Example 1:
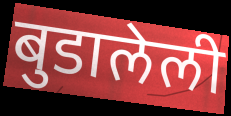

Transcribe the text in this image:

बुडालेली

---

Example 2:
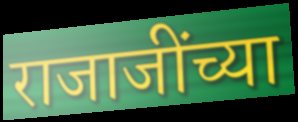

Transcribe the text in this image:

राजाजींच्या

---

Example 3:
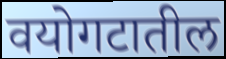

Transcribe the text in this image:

वयोगटातील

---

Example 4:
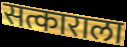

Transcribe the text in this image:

सत्काराला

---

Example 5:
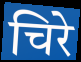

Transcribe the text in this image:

चिरे